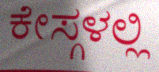
ಕೇಸ್ಗಳಲ್ಲಿ